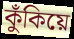
কুঁকিয়ে